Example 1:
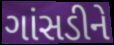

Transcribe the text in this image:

ગાંસડીને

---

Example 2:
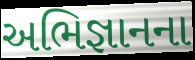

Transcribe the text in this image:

અભિજ્ઞાનના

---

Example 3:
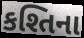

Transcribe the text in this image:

કશ્તિના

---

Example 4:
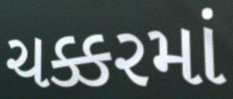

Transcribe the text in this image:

ચક્કરમાં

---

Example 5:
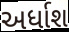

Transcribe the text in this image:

અર્ધાશ